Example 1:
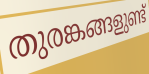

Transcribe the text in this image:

തുരങ്കങ്ങളുണ്ട്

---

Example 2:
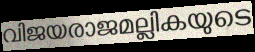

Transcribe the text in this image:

വിജയരാജമല്ലികയുടെ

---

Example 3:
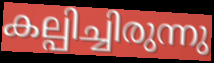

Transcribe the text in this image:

കല്പിച്ചിരുന്നു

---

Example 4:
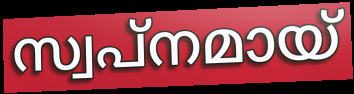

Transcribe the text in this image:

സ്വപ്നമായ്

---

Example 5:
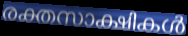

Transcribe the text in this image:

രക്തസാക്ഷികൾ